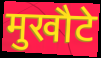
मुखौटे